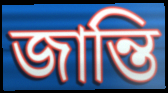
জান্তি